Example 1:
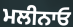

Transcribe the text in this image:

ਮਲੀਨਾਓ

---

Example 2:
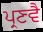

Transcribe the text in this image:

ਪ੍ਰਣਵੈ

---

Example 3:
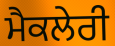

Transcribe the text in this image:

ਮੈਕਲੇਰੀ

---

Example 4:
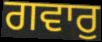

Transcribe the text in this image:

ਗਵਾਰੁ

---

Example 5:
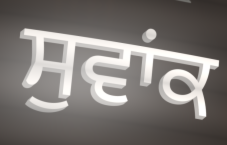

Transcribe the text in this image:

ਸੁਵਾਂਕ